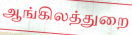
ஆங்கிலத்துறை